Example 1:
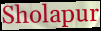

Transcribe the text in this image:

Sholapur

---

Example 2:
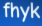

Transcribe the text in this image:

fhyk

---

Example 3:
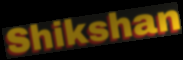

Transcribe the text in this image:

Shikshan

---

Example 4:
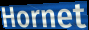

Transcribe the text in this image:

Hornet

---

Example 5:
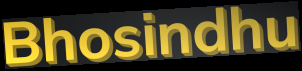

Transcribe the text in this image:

Bhosindhu